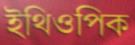
ইথিওপিক